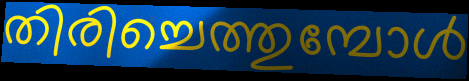
തിരിച്ചെത്തുമ്പോൾ